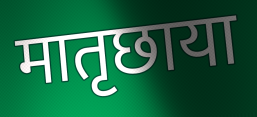
मातृछाया